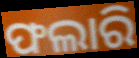
ଫଲାରି